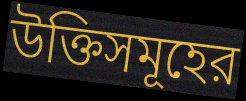
উক্তিসমূহের